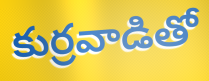
కుర్రవాడితో